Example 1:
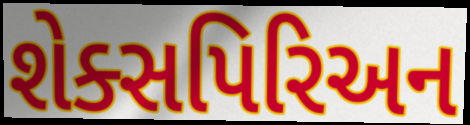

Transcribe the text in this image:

શેક્સપિરિઅન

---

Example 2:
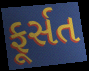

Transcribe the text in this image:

ફૂર્સત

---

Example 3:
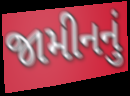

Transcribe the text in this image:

જામીનનું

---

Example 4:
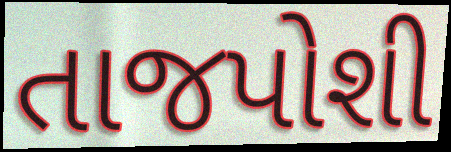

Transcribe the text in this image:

તાજપોશી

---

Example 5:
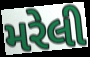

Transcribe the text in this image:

મરેલી